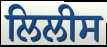
ਲਿਲੀਸ